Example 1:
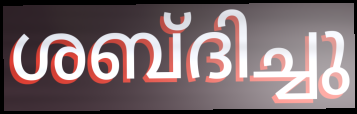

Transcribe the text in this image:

ശബ്ദിച്ചു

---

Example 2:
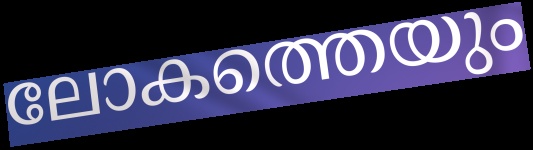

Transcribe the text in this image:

ലോകത്തെയും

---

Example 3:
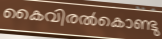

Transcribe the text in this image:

കൈവിരൽകൊണ്ടു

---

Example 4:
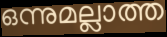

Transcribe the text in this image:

ഒന്നുമല്ലാത്ത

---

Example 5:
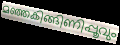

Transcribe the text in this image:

മഞ്ഞകിങ്ങിണിപ്പൂവും